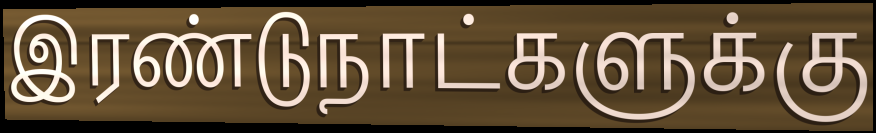
இரண்டுநாட்களுக்கு